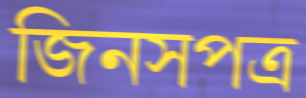
জিনসপত্র